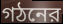
গঠনের